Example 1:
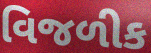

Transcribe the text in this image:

વિજળીક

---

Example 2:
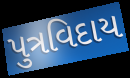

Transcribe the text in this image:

પુત્રવિદાય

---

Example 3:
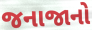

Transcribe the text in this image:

જનાજાનો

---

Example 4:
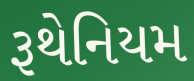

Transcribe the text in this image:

રૂથેનિયમ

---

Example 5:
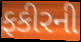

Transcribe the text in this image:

ફકીરની